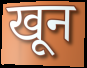
खून